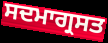
ਸਦਮਾਗ੍ਰਸਤ